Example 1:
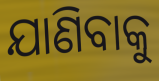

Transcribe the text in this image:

ଯାଣିବାକୁ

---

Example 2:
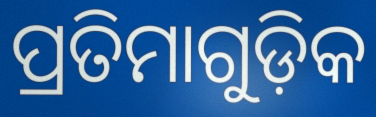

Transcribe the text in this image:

ପ୍ରତିମାଗୁଡ଼ିକ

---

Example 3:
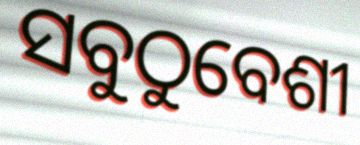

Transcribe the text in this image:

ସବୁଠୁବେଶୀ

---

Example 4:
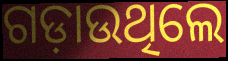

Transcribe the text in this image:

ଗଡ଼ାଉଥିଲେ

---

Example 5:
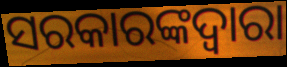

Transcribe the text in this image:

ସରକାରଙ୍କଦ୍ବାରା